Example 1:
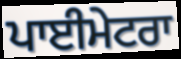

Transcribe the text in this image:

ਪਾਈਮੇਟਰਾ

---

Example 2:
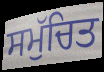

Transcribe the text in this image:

ਸਮੁੱਚਿਤ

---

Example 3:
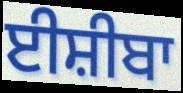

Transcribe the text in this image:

ਈਸ਼ੀਬਾ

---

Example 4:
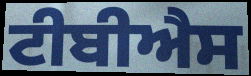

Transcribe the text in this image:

ਟੀਬੀਐਸ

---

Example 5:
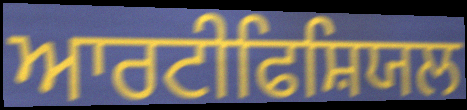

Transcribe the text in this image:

ਆਰਟੀਫਿਸ਼ਿਯਲ